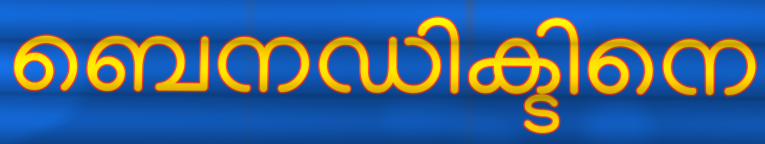
ബെനഡിക്ടിനെ